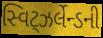
સ્વિટ્ઝર્લેન્ડની